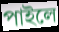
পাইলে